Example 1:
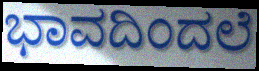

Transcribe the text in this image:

ಭಾವದಿಂದಲೆ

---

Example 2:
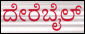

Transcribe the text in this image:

ದೇರೆಬೈಲ್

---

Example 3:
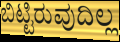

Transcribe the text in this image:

ಬಿಟ್ಟಿರುವುದಿಲ್ಲ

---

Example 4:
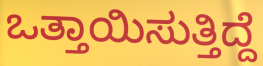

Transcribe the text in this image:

ಒತ್ತಾಯಿಸುತ್ತಿದ್ದೆ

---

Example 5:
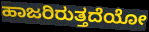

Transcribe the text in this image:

ಹಾಜರಿರುತ್ತದೆಯೋ